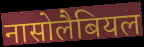
नासोलैबियल